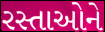
રસ્તાઓને